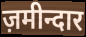
ज़मीन्दार